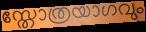
സ്തോത്രയാഗവും